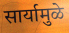
सार्यामुळे